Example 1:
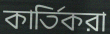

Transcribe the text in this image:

কার্তিকরা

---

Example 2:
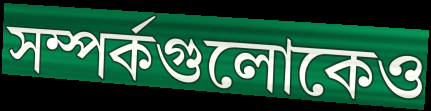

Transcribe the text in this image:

সম্পর্কগুলোকেও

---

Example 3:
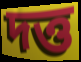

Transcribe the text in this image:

দত্ত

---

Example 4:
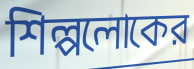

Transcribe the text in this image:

শিল্পলোকের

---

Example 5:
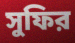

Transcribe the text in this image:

সুফির